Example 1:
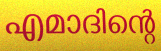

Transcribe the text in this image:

എമാദിന്റെ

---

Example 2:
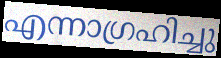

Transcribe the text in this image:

എന്നാഗ്രഹിച്ചു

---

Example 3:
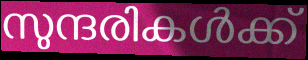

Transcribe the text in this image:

സുന്ദരികൾക്ക്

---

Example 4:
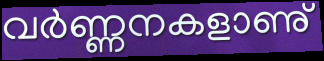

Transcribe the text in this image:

വർണ്ണനകളാണു്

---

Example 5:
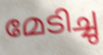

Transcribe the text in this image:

മേടിച്ചു